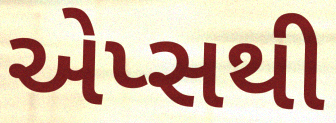
એપ્સથી